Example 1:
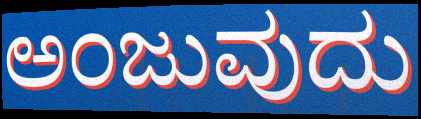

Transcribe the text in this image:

ಅಂಜುವುದು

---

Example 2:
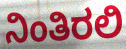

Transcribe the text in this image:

ನಿಂತಿರಲಿ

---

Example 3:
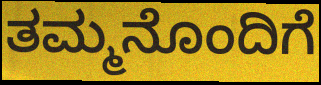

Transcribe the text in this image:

ತಮ್ಮನೊಂದಿಗೆ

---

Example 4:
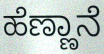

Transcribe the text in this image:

ಹೆಣ್ಣಾನೆ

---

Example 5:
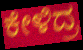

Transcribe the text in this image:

ಕೇಳಿದ್ರ